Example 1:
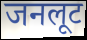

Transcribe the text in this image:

जनलूट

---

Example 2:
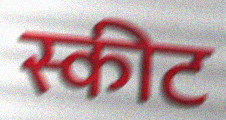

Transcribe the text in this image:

स्‍कीट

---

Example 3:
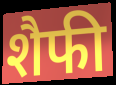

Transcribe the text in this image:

शैफी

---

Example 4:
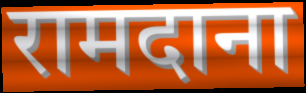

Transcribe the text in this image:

रामदाना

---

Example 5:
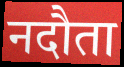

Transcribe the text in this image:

नदौता